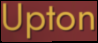
Upton